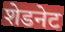
शेडनेट